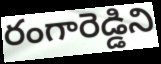
రంగారెడ్డిని